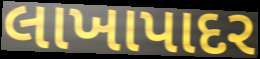
લાખાપાદર